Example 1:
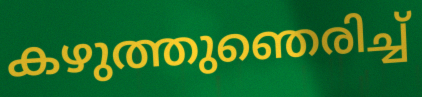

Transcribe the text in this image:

കഴുത്തുഞെരിച്ച്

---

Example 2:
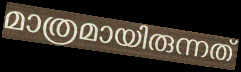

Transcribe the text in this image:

മാത്രമായിരുന്നത്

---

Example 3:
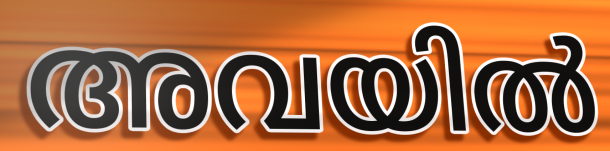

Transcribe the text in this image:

അവയിൽ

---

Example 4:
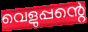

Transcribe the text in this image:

വെളുപ്പന്റെ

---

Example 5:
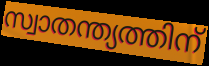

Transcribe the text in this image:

സ്വാതന്ത്യത്തിന്